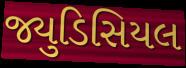
જ્યુડિસિયલ